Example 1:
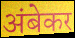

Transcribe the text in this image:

अंबेकर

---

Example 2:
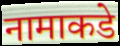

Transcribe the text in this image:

नामाकडे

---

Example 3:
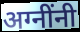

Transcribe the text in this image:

अग्नींनी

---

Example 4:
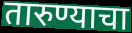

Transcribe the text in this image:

तारुण्याचा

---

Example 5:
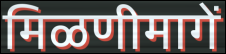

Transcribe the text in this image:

मिळणीमागें